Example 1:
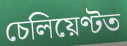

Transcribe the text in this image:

চেলিয়েণ্টত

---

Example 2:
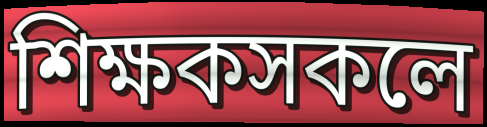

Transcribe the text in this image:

শিক্ষকসকলে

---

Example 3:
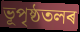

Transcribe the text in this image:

ভূপৃষ্ঠতলৰ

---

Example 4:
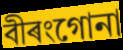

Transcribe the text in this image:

বীৰংগোনা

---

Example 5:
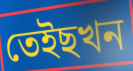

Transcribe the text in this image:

তেইছখন